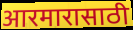
आरमारासाठी